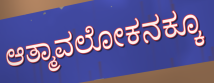
ಆತ್ಮಾವಲೋಕನಕ್ಕೂ